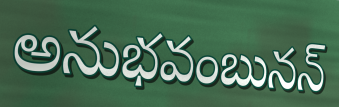
అనుభవంబునన్